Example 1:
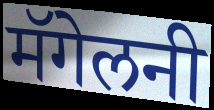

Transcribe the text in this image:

मॅगेलनी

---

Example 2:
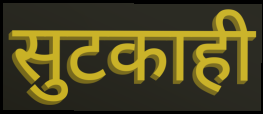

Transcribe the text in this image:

सुटकाही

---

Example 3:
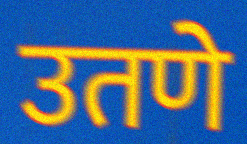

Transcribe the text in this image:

उतणे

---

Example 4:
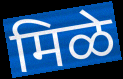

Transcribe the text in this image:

मिळे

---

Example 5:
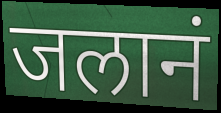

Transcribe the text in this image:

जलानं